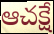
ఆచక్షే